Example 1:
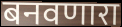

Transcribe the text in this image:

बनवणारा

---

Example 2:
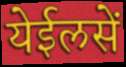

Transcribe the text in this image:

येईलसें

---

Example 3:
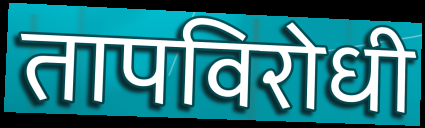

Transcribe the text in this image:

तापविरोधी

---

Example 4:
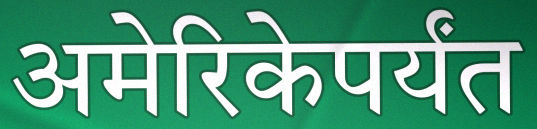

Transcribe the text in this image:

अमेरिकेपर्यंत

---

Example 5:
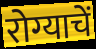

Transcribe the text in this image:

रोग्याचें